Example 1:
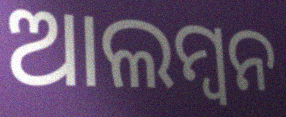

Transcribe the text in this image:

ଆଲମ୍ୱନ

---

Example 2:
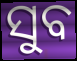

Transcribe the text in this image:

ସୁବ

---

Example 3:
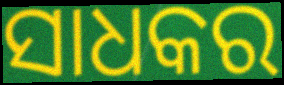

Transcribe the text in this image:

ସାଧକର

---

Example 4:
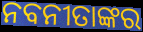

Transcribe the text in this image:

ନବନୀତାଙ୍କର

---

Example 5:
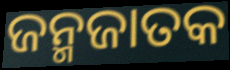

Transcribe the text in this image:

ଜନ୍ମଜାତକ